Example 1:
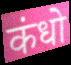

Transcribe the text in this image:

कंधो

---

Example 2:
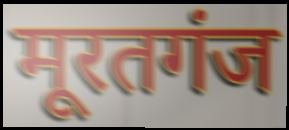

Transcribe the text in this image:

मूरतगंज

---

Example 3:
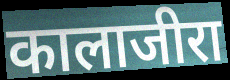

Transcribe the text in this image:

कालाजीरा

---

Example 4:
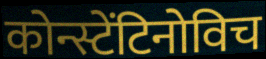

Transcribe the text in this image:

कोन्स्टेंटिनोविच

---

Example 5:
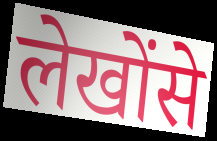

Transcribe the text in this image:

लेखोंसे